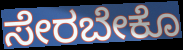
ಸೇರಬೇಕೊ